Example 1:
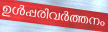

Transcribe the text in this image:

ഉൾപ്പരിവർത്തനം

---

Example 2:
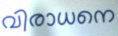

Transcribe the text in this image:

വിരാധനെ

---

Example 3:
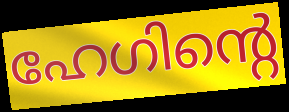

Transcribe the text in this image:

ഹേഗിന്റെ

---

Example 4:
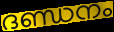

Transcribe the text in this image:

ദണ്ഡനം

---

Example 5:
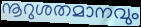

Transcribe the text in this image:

നൂറുശതമാനവും